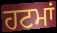
ਹਟਮਾਂ